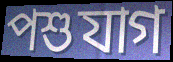
পশুযাগ